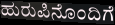
ಹುರುಪಿನೊಂದಿಗೆ